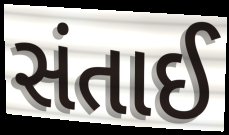
સંતાઈ